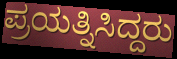
ಪ್ರಯತ್ನಿಸಿದ್ದರು